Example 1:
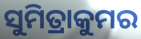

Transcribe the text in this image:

ସୁମିତ୍ରାକୁମର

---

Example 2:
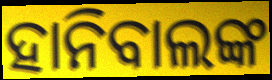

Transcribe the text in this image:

ହାନିବାଲଙ୍କ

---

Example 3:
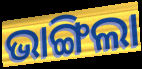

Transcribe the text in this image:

ଭାଙ୍ଗିଲା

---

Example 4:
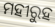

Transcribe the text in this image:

ମହୀରୁହ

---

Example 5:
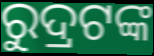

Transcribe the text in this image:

ରୁଦ୍ରଟଙ୍କ